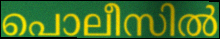
പൊലീസിൽ